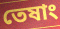
তেষাং